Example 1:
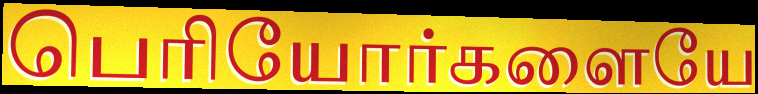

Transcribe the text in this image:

பெரியோர்களையே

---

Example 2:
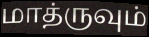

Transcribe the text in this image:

மாத்ருவும்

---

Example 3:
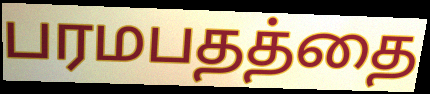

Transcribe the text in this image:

பரமபதத்தை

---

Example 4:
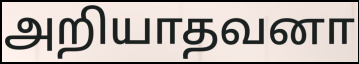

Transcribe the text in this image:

அறியாதவனா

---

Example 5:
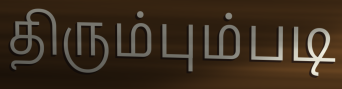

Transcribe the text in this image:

திரும்பும்படி